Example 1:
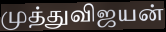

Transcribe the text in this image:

முத்துவிஜயன்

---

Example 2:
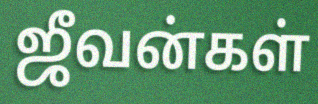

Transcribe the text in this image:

ஜீவன்கள்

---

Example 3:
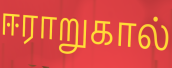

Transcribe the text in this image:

ஈராறுகால்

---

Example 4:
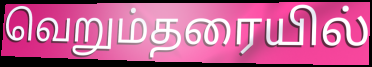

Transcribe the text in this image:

வெறும்தரையில்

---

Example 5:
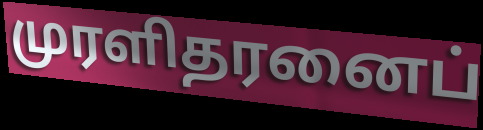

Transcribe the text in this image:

முரளிதரனைப்